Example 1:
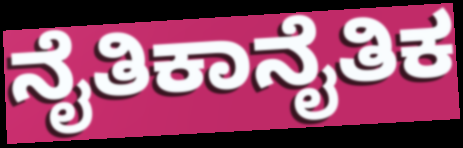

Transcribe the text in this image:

ನೈತಿಕಾನೈತಿಕ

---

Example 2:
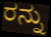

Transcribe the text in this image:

ರನ್ನು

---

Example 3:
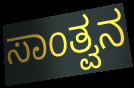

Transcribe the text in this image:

ಸಾಂತ್ವನ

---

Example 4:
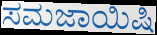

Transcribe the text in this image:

ಸಮಜಾಯಿಷಿ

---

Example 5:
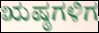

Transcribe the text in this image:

ಋಷ್ಠಗಳಿಗ